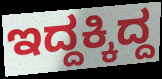
ಇದ್ದಕ್ಕಿದ್ದ